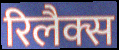
रिलैक्‍स